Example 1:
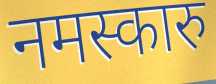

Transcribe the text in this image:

नमस्कारु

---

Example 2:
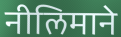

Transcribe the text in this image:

नीलिमाने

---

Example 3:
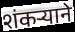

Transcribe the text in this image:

शंकर्‍याने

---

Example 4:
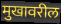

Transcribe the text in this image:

मुखावरील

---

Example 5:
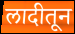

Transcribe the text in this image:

लादीतून